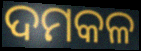
ଦମକଳ